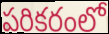
పరికరంలో